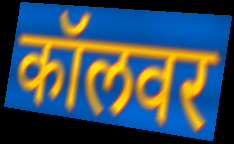
कॉलवर